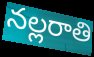
నల్లరాతి